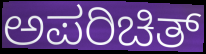
ಅಪರಿಚಿತ್